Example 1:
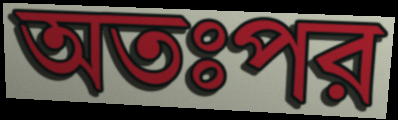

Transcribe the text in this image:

অতঃপর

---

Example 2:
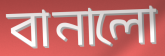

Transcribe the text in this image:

বানালো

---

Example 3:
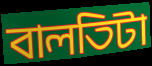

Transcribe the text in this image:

বালতিটা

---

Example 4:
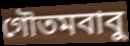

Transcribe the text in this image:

গৌতমবাবু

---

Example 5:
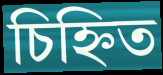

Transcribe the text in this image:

চিহ্নিত